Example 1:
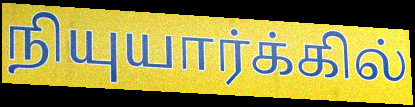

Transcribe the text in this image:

நியுயார்க்கில்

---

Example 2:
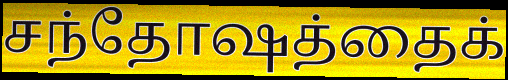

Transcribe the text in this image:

சந்தோஷத்தைக்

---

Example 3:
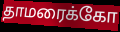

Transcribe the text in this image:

தாமரைக்கோ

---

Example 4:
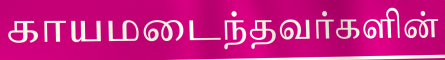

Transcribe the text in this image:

காயமடைந்தவர்களின்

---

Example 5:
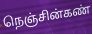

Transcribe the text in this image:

நெஞ்சின்கண்